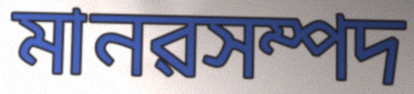
মানৱসম্পদ